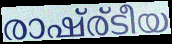
രാഷ്ര്ടീയ